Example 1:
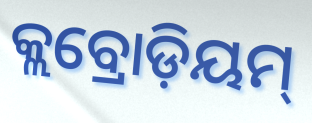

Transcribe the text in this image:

କ୍ଲବ୍ରୋଡ଼ିୟମ୍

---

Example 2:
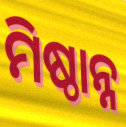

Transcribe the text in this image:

ମିଷ୍ଠାନ୍ନ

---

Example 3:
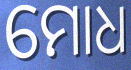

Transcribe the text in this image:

ମୋଧ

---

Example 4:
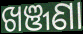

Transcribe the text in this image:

ଖଞ୍ଜଣା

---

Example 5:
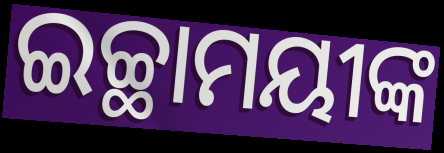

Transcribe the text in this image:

ଇଚ୍ଛାମୟୀଙ୍କ